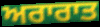
ਅਰਾਰਾਤ